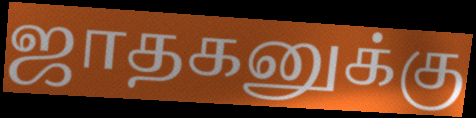
ஜாதகனுக்கு